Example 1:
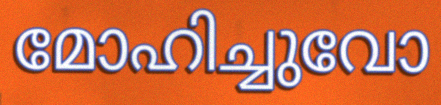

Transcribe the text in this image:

മോഹിച്ചുവോ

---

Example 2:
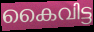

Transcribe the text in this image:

കൈവിട്ട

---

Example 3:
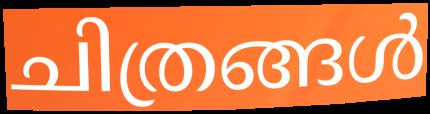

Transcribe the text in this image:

ചിത്രങ്ങൾ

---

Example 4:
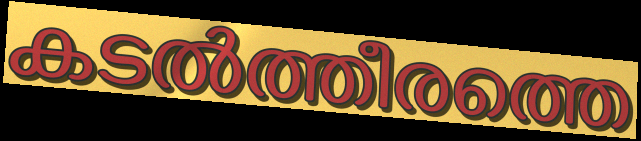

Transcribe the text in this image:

കടൽത്തീരത്തെ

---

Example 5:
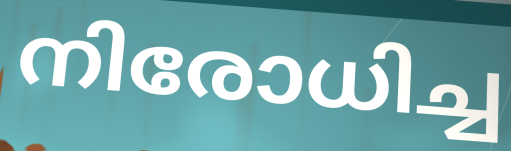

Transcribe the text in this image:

നിരോധിച്ച